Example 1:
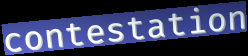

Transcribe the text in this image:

contestation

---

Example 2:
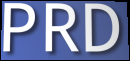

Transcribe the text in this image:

PRD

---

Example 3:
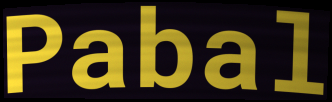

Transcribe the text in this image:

Pabal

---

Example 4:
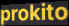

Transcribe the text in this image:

prokito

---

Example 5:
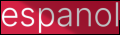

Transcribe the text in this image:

espanol